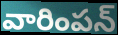
వారింపన్